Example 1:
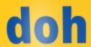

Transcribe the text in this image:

doh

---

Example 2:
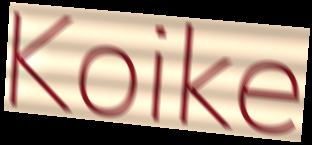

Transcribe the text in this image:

Koike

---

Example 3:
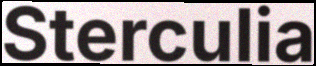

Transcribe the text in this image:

Sterculia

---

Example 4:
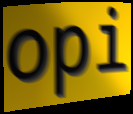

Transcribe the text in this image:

opi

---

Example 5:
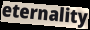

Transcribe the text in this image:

eternality